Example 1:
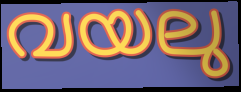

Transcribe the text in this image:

വയലു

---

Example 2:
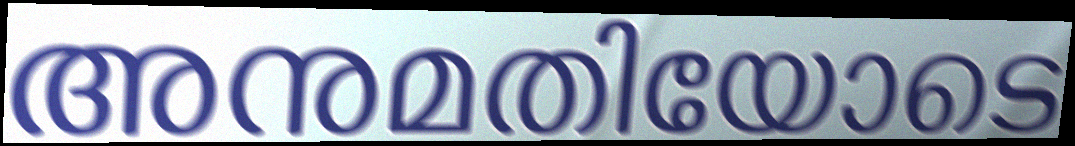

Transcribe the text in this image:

അനുമതിയോടെ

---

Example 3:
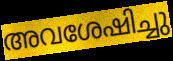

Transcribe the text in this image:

അവശേഷിച്ചു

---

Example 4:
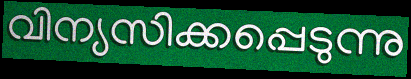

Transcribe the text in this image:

വിന്യസിക്കപ്പെടുന്നു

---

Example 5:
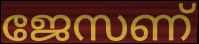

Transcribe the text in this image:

ജേസണ്